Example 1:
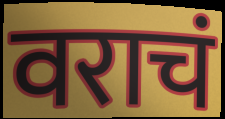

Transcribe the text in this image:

वराचं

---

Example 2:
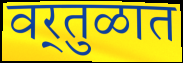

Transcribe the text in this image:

वर्तुळात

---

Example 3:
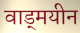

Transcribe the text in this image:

वाड्‌मयीन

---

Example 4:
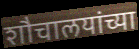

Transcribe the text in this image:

शौचालयांच्या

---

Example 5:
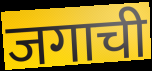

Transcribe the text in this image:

जगाची